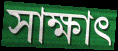
সাক্ষাৎ